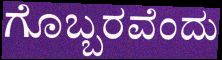
ಗೊಬ್ಬರವೆಂದು